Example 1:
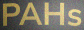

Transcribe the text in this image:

PAHs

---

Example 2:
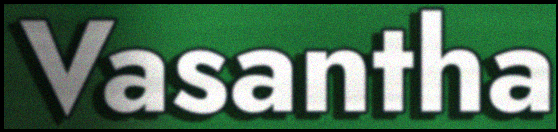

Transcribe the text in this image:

Vasantha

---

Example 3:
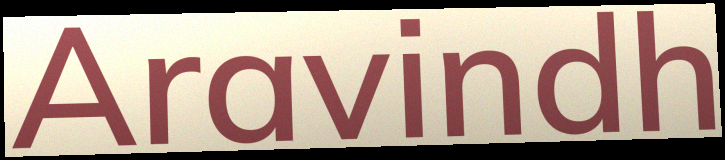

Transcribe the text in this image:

Aravindh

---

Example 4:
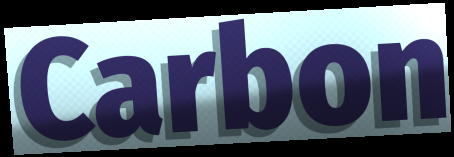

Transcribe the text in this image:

Carbon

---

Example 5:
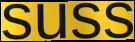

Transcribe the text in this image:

suss